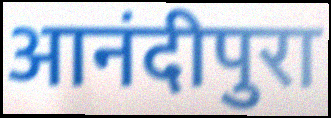
आनंदीपुरा